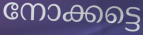
നോക്കട്ടെ